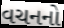
વચનનો